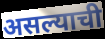
असल्याची